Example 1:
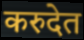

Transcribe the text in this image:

करुदेत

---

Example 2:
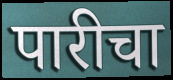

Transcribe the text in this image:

पारीचा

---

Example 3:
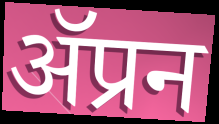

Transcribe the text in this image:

ॲप्रन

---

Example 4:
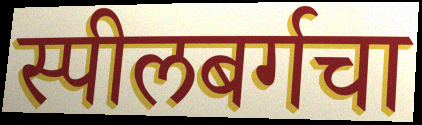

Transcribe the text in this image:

स्पीलबर्गचा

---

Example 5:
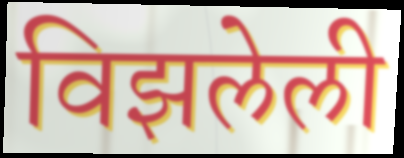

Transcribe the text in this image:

विझलेली